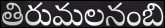
తిరుమలనంబి